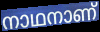
നാഥനാണ്